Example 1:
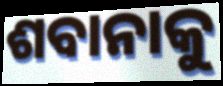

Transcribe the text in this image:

ଶବାନାକୁ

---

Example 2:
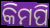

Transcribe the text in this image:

କିମପି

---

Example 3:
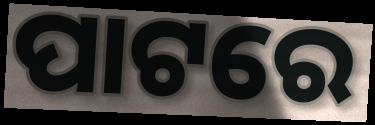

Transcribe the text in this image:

ପାଟରେ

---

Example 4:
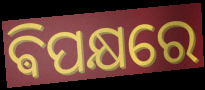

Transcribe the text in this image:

ଵିପକ୍ଷରେ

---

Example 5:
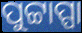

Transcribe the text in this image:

ପୁଟ୍ଟାପ୍ପା